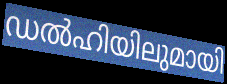
ഡൽഹിയിലുമായി